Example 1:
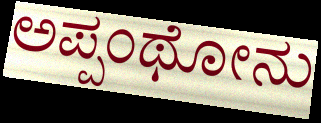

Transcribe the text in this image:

ಅಪ್ಪಂಥೋನು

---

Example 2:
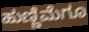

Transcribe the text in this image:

ಹುಣ್ಣಿಮೆಗೂ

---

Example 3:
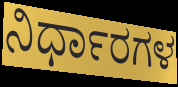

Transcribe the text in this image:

ನಿರ್ಧಾರಗಳ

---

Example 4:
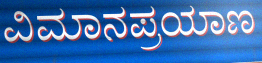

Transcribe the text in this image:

ವಿಮಾನಪ್ರಯಾಣ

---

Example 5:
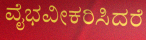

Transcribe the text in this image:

ವೈಭವೀಕರಿಸಿದರೆ